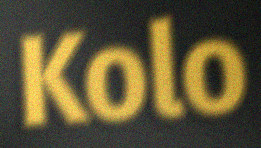
Kolo